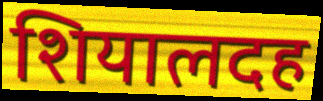
शियालदह